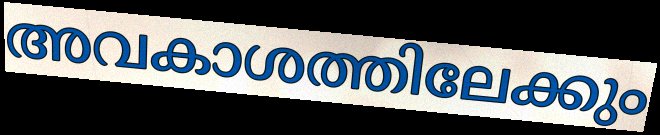
അവകാശത്തിലേക്കും